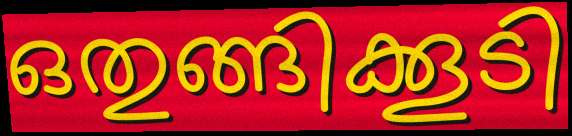
ഒതുങ്ങിക്കൂടി